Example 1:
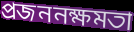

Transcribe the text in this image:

প্রজননক্ষমতা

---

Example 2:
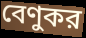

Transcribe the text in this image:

বেণুকর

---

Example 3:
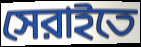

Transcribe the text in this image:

সেরাইতে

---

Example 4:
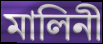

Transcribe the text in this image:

মালিনী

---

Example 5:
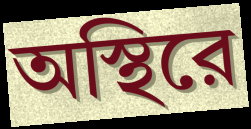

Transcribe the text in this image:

অস্থিরে